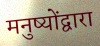
मनुष्योंद्वारा